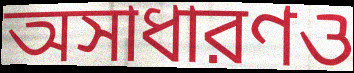
অসাধারণও